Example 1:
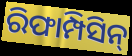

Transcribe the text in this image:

ରିଫାମ୍ପିସିନ୍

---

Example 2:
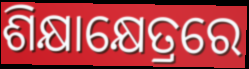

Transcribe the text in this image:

ଶିକ୍ଷାକ୍ଷେତ୍ରରେ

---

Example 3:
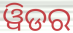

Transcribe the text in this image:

ୱିଡର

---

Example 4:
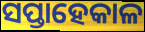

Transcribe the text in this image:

ସପ୍ତାହେକାଳ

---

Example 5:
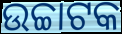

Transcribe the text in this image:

ଉଚ୍ଚାଟକ